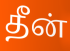
தீன்